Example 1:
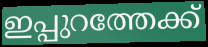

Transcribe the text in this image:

ഇപ്പുറത്തേക്ക്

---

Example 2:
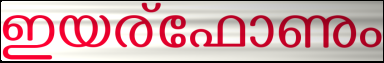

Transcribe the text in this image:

ഇയര്ഫോണും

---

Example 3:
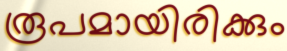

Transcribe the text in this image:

രൂപമായിരിക്കും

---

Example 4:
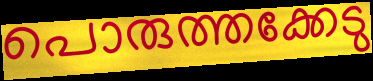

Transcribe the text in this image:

പൊരുത്തക്കേടു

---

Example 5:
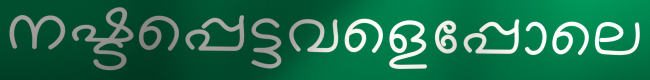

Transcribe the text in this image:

നഷ്ടപ്പെട്ടവളെപ്പോലെ